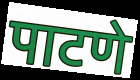
पाटणे